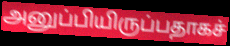
அனுப்பியிருப்பதாகச்